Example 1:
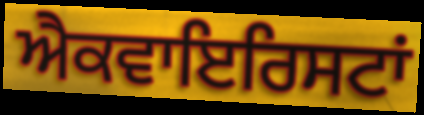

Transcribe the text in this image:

ਐਕਵਾਇਰਿਸਟਾਂ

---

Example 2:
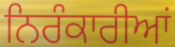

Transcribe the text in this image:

ਨਿਰੰਕਾਰੀਆਂ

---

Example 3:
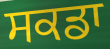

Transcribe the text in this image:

ਸਕਡਾ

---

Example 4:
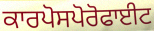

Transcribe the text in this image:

ਕਾਰਪੋਸਪੋਰੋਫਾਈਟ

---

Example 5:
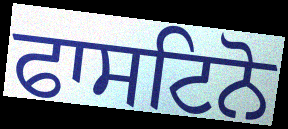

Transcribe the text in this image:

ਫਾਸਟਿਨੋ